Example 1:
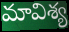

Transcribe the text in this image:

మావిశ్య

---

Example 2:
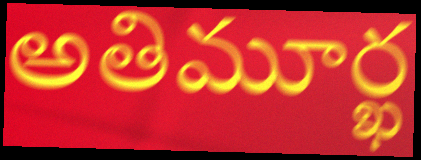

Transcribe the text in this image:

అతిమూర్ఖ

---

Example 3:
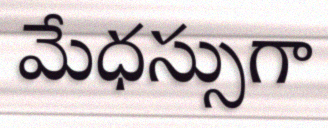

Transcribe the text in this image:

మేధస్సుగా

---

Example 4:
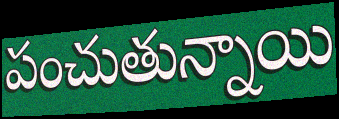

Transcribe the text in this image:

పంచుతున్నాయి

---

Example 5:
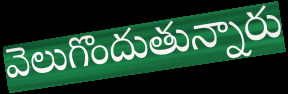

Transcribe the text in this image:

వెలుగొందుతున్నారు